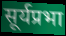
सूर्यप्रभा